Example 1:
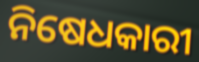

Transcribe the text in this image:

ନିଷେଧକାରୀ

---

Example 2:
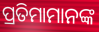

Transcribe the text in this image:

ପ୍ରତିମାମାନଙ୍କ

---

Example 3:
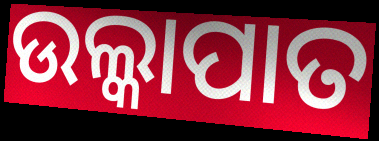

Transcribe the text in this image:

ଉଲ୍କାପାତ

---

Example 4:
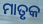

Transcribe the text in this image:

ମାତୃକ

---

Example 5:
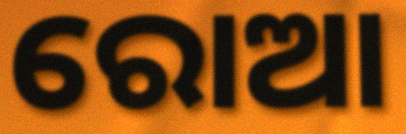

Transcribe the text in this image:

ରୋଆ